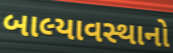
બાલ્યાવસ્થાનો